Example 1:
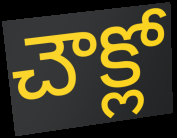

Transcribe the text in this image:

చౌక్లో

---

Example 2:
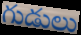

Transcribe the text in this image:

గుడులు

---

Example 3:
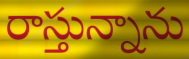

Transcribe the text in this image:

రాస్తున్నాను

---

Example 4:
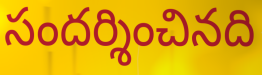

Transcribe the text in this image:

సందర్శించినది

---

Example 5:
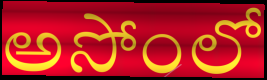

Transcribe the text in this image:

అసోంలో